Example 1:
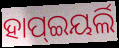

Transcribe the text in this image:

ହାପ୍ଇୟର୍ଲି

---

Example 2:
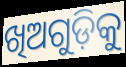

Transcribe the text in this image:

ଖିଅଗୁଡ଼ିକୁ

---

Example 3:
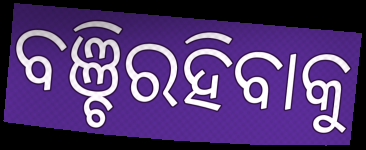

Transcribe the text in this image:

ବଞ୍ଚିରହିବାକୁ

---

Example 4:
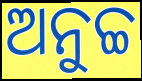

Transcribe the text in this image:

ଅନୁଚ୍ଚ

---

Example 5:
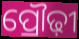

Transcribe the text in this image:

ପ୍ରୌଢ଼ୀ